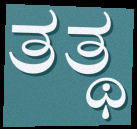
ತತ್ಥ